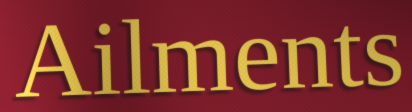
Ailments